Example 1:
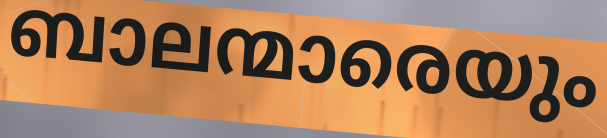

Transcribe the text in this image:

ബാലന്മാരെയും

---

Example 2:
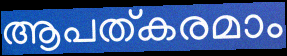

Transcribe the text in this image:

ആപത്കരമാം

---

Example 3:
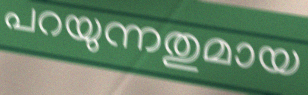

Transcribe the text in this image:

പറയുന്നതുമായ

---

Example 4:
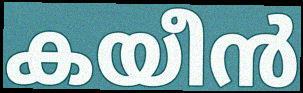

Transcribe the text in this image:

കയീൻ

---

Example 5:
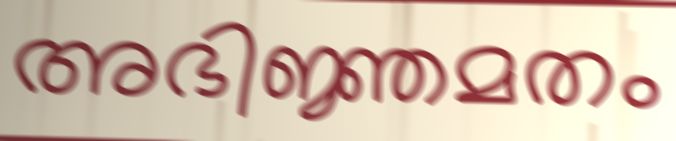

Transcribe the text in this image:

അഭിജ്ഞമതം